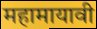
महामायावी